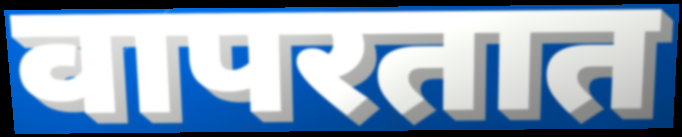
वापरतात